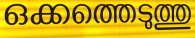
ഒക്കത്തെടുത്തു